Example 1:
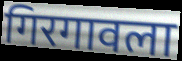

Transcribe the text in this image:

गिरगावला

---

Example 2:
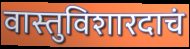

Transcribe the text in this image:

वास्तुविशारदाचं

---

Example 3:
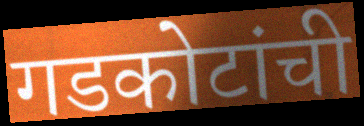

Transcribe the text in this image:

गडकोटांची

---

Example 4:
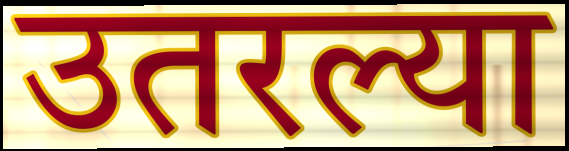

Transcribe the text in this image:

उतरल्या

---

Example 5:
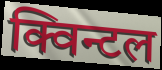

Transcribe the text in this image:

क्विन्टल